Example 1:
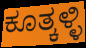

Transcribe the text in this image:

ಕೂತ್ಕಳ್ಳಿ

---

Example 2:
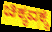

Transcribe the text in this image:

ಚಿಕ್ಕವಕ್ಕೆ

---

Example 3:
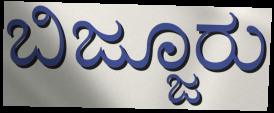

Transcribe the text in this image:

ಬಿಜ್ಜೂರು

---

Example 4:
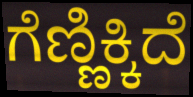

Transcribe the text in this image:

ಗೆಣ್ಣಿಕ್ಕಿದೆ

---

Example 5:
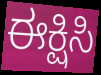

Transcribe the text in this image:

ಈಕ್ಷಿಸಿ